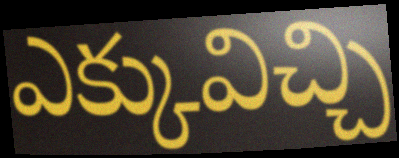
ఎక్కువిచ్చి